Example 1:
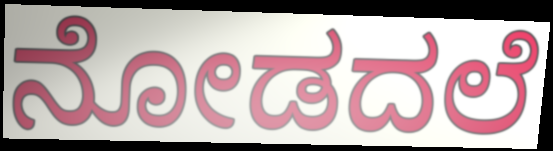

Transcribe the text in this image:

ನೋಡದಲೆ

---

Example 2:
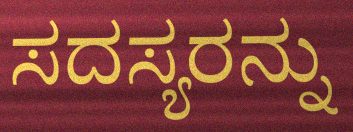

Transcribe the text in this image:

ಸದಸ್ಯರನ್ನು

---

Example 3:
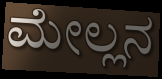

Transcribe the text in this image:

ಮೇಲ್ಲನ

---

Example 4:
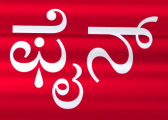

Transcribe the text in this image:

ಫೈನ್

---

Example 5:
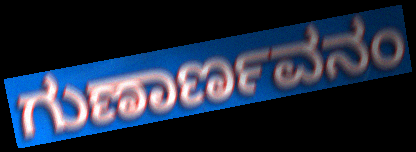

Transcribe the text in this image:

ಗುಣಾರ್ಣವನಂ